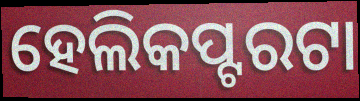
ହେଲିକପ୍ଟରଟା